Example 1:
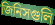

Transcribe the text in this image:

জিনিসগুলি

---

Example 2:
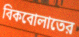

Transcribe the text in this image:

বিকবোলাতের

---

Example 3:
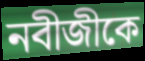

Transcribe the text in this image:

নবীজীকে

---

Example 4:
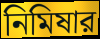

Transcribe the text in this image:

নিমিষার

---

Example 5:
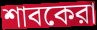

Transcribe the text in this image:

শাবকেরা